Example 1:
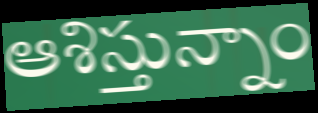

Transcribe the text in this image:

ఆశిస్తున్నాం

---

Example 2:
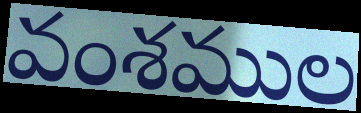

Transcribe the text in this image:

వంశముల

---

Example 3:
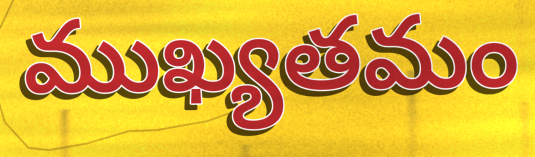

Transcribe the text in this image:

ముఖ్యతమం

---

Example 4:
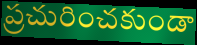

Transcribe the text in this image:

ప్రచురించకుండా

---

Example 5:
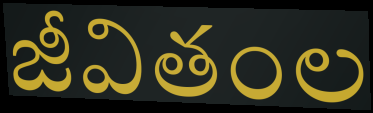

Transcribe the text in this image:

జీవితంల